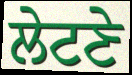
ਲੇਟਣੇ